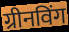
ग्रीनविंग